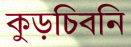
কুড়চিবনি